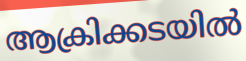
ആക്രിക്കടയിൽ